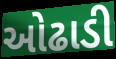
ઓઢાડી